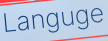
Languge